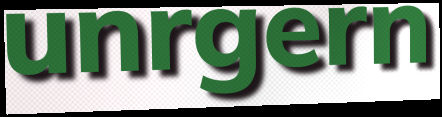
unrgern